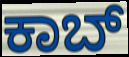
ಕಾಬ್